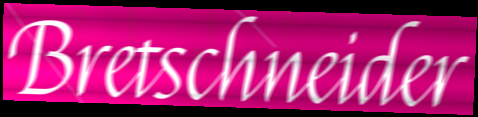
Bretschneider